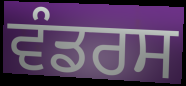
ਵੰਡਰਸ